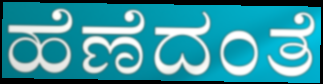
ಹೆಣೆದಂತೆ